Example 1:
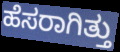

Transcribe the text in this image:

ಹೆಸರಾಗಿತ್ತು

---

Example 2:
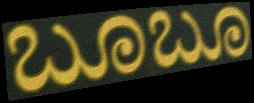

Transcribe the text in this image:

ಬೂಬೂ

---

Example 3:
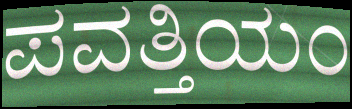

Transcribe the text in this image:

ಪವತ್ತಿಯಂ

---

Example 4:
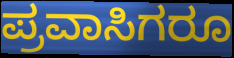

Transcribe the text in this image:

ಪ್ರವಾಸಿಗರೂ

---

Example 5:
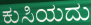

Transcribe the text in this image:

ಕುಸಿಯದು